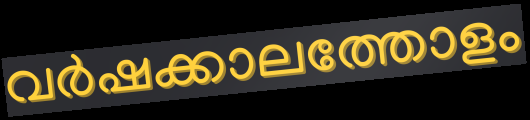
വർഷക്കാലത്തോളം